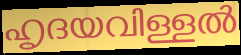
ഹൃദയവിള്ളൽ